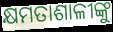
କ୍ଷମତାଶାଳୀଙ୍କୁ